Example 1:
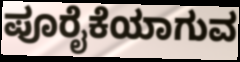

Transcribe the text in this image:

ಪೂರೈಕೆಯಾಗುವ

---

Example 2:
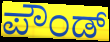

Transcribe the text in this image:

ಪೌಂಡ್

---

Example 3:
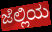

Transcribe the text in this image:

ಜೆಲ್ಲಿಯ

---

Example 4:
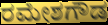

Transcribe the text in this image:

ರಮೇಶಗೌಡ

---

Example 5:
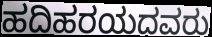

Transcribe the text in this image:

ಹದಿಹರಯದವರು